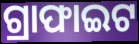
ଗ୍ରାଫାଇଟ